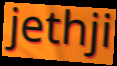
jethji